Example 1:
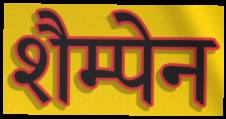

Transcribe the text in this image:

शैम्पेन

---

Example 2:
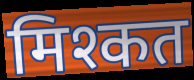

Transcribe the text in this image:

मिश्कत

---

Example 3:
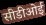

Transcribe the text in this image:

सीडीओई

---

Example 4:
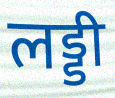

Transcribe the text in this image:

लड्डी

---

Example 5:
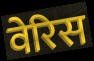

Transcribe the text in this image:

वेरिस